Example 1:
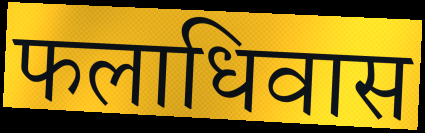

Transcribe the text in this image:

फलाधिवास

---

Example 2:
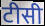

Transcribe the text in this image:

टीसी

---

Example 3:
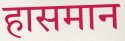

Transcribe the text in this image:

हासमान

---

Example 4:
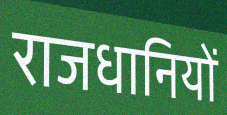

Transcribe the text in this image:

राजधानियों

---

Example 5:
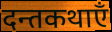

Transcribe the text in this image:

दन्तकथाएँ